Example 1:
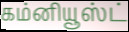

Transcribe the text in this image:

கம்னியூஸ்ட்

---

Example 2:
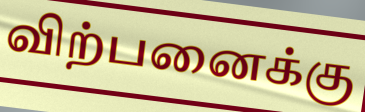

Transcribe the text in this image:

விற்பனைக்கு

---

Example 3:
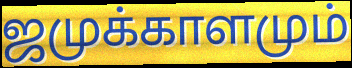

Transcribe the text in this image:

ஜமுக்காளமும்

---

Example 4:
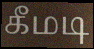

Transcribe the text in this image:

கீமடி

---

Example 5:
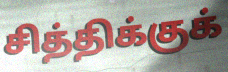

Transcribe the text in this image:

சித்திக்குக்